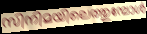
സിനിമയിലെത്തുമ്പോൾ